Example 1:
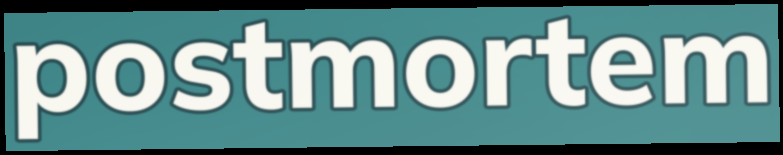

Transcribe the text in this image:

postmortem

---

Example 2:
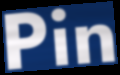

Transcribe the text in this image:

Pin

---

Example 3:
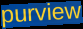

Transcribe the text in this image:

purview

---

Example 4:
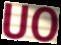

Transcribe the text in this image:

UO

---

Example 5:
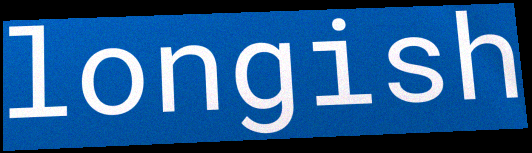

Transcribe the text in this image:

longish